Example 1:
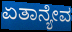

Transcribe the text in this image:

ಏತಾನ್ಯೇವ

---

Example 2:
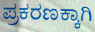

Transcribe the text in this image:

ಪ್ರಕರಣಕ್ಕಾಗಿ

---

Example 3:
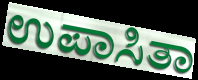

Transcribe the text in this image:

ಉಪಾಸಿತಾ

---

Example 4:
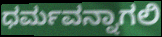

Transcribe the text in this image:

ಧರ್ಮವನ್ನಾಗಲಿ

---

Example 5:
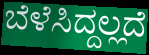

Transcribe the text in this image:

ಬೆಳೆಸಿದ್ದಲ್ಲದೆ